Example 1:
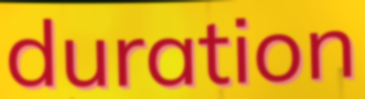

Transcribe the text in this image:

duration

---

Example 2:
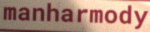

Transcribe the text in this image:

manharmody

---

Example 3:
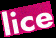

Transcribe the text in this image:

lice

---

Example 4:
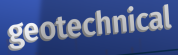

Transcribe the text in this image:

geotechnical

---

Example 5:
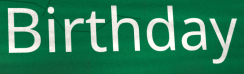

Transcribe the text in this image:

Birthday